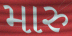
મારુ